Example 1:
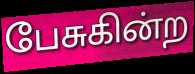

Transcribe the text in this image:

பேசுகின்ற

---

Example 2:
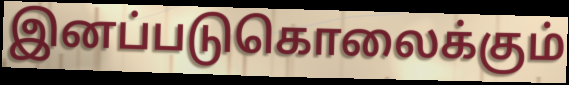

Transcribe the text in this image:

இனப்படுகொலைக்கும்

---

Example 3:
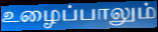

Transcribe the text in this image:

உழைப்பாலும்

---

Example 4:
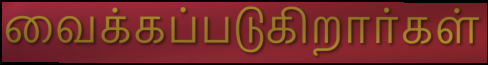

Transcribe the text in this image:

வைக்கப்படுகிறார்கள்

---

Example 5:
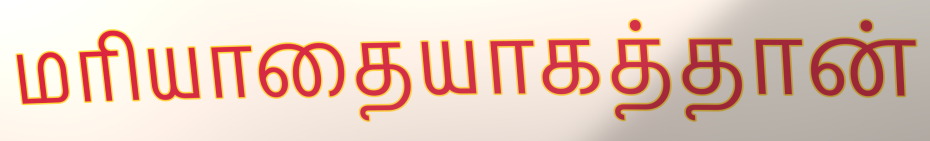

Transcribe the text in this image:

மரியாதையாகத்தான்